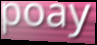
poay